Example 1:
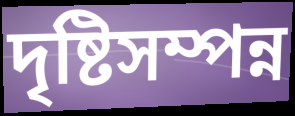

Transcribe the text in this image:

দৃষ্টিসম্পন্ন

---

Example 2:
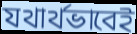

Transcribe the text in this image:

যথার্থভাবেই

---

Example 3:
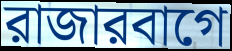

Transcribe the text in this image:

রাজারবাগে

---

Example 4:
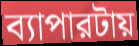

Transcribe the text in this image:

ব্যাপারটায়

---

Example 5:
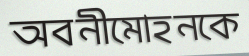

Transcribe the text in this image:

অবনীমোহনকে